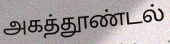
அகத்தூண்டல்